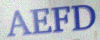
AEFD